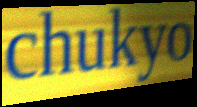
chukyo